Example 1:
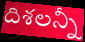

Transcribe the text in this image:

దిశలన్నీ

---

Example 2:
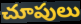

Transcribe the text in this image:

చూపులు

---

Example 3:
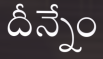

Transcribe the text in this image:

దీన్నేం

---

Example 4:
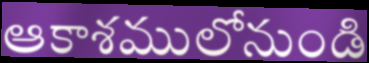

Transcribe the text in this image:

ఆకాశములోనుండి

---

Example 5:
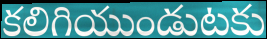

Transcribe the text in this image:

కలిగియుండుటకు